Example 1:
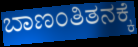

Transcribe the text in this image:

ಬಾಣಂತಿತನಕ್ಕೆ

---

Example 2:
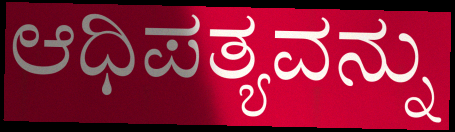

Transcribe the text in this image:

ಆಧಿಪತ್ಯವನ್ನು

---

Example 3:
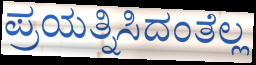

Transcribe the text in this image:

ಪ್ರಯತ್ನಿಸಿದಂತೆಲ್ಲ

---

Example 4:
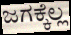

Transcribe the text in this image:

ಜಗಕ್ಕೆಲ್ಲ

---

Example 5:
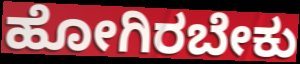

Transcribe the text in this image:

ಹೋಗಿರಬೇಕು